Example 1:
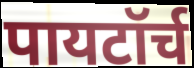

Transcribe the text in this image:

पायटॉर्च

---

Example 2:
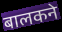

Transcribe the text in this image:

बालकने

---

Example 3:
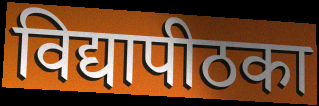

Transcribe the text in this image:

विद्यापीठका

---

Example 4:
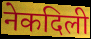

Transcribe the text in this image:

नेकदिली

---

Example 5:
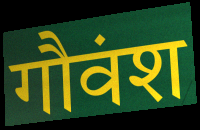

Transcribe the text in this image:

गौवंश